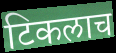
टिकलाच